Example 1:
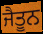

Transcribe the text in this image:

ਜੈਤੂਨ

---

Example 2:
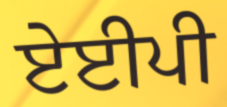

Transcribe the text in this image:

ਏਈਪੀ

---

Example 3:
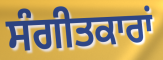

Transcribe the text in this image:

ਸੰਗੀਤਕਾਰਾਂ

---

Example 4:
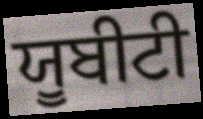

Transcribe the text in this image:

ਯੂਬੀਟੀ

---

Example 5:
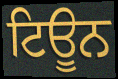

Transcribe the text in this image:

ਟਿਊਨ